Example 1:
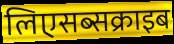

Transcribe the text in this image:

लिएसब्सक्राइब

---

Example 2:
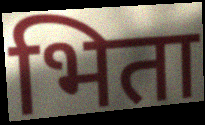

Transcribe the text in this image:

भिता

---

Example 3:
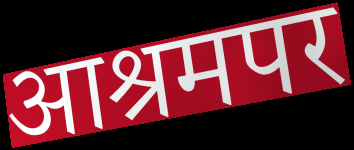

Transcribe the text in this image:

आश्रमपर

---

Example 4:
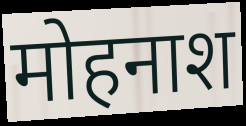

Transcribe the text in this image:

मोहनाश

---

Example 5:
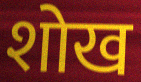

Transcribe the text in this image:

शोख